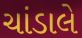
ચાંડાલે